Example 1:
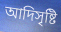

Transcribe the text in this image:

আদিসৃষ্টি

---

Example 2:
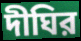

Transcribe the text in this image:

দীঘির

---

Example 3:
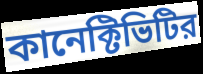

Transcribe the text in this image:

কানেক্টিভিটির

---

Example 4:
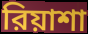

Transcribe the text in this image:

রিয়াশা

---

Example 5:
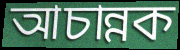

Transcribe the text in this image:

আচান্নক